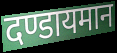
दण्डायमान